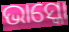
ଭାସ୍କୋ